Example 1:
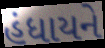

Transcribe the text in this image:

હંધાયને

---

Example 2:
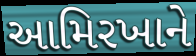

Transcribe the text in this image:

આમિરખાને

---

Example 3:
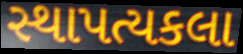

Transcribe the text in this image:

સ્થાપત્યકલા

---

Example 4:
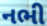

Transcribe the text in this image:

નભી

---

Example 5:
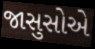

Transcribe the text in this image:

જાસુસોએ